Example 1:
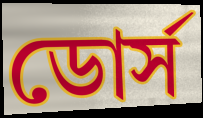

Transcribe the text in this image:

ডোর্স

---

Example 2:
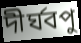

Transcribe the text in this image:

দীর্ঘবপু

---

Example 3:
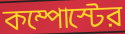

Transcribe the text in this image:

কম্পোস্টের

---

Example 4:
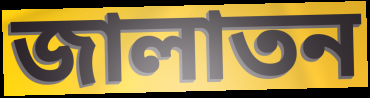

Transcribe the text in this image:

জালাতন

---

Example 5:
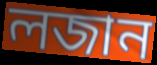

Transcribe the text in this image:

লজান